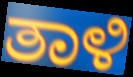
ತಾಳಿ